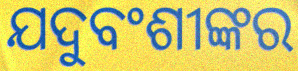
ଯଦୁବଂଶୀଙ୍କର